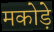
मकोड़े